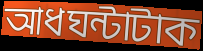
আধঘন্টাটাক